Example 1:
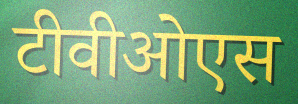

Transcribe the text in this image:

टीवीओएस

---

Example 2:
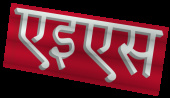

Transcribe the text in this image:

एइएस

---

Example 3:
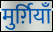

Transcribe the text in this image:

मुर्ग़ियाँ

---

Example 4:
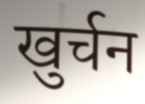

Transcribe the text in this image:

खुर्चन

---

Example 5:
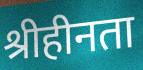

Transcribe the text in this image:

श्रीहीनता